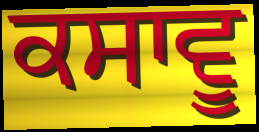
ਕਸਾਵੂ